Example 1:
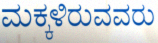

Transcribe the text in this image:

ಮಕ್ಕಳಿರುವವರು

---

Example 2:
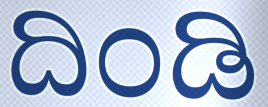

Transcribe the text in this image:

ದಿಂಡಿ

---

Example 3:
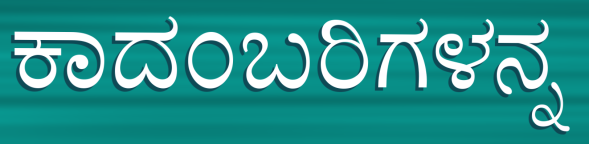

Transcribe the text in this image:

ಕಾದಂಬರಿಗಳನ್ನ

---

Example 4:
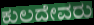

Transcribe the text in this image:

ಕುಲದೇವರು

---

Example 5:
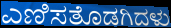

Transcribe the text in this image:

ಎಣಿಸತೊಡಗಿದಳು